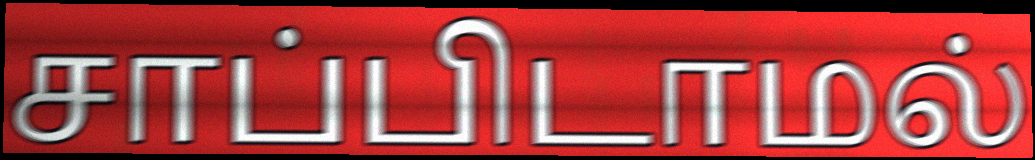
சாப்பிடாமல்